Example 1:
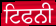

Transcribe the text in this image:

ਟਿਫਨੀ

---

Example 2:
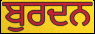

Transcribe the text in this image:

ਬੁਰਦਨ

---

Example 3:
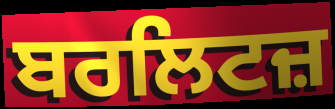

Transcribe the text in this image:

ਬਰਲਿਟਜ਼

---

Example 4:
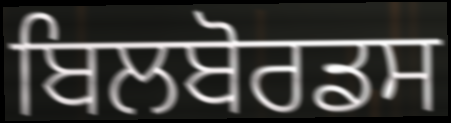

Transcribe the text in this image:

ਬਿਲਬੋਰਡਸ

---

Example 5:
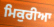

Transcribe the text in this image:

ਮਿਕੁਰੀਆ